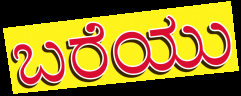
ಬರೆಯು